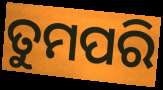
ତୁମପରି